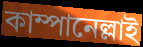
কাম্পানেল্লাই